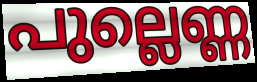
പുല്ലെണ്ണ